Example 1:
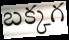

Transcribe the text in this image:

బక్కగ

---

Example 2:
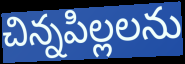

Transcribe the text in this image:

చిన్నపిల్లలను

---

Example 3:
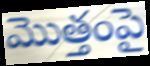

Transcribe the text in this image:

మొత్తంపై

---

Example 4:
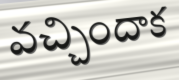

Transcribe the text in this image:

వచ్చిందాక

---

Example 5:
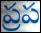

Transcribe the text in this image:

ప్రప